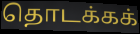
தொடக்கக்